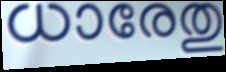
ധാരേതു